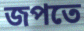
জপতে